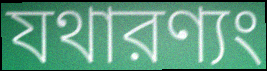
যথারণ্যং